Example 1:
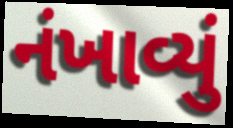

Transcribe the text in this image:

નંખાવ્યું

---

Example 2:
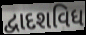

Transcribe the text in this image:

દ્વાદશવિધ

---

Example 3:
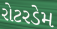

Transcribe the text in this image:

રોટરડેમ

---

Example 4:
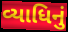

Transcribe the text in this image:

વ્યાધિનું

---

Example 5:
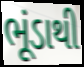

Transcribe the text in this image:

ભૂંડાથી